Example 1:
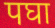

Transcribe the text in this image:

पघा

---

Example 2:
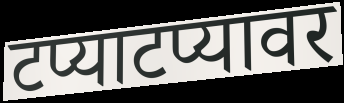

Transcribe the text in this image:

टप्याटप्यावर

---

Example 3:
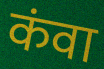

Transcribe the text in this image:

कंवा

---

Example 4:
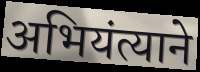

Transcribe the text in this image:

अभियंत्याने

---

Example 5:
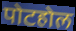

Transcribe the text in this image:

पोटहोल